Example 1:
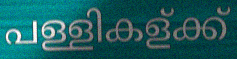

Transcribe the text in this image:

പള്ളികള്ക്ക്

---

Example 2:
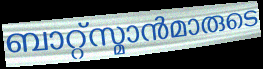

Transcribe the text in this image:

ബാറ്റ്സ്മാൻമാരുടെ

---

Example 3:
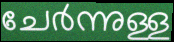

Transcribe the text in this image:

ചേർന്നുള്ള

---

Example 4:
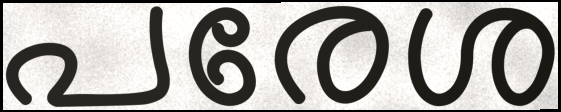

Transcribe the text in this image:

പരേശ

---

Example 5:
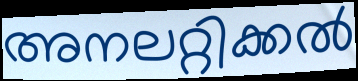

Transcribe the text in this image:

അനലറ്റിക്കൽ